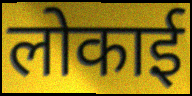
लोकाई